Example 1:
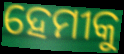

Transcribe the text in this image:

ହେମୀକୁ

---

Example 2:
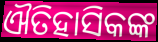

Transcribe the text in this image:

ଐତିହାସିକଙ୍କ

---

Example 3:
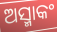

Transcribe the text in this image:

ଅସ୍ମାକଂ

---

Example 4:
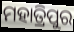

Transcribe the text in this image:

ମହାତ୍ରିପୁର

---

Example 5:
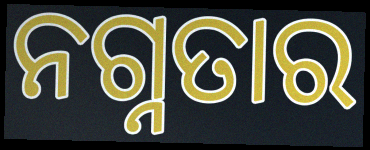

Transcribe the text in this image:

ନଗ୍ନତାର